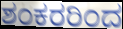
ಶಂಕರರಿಂದ